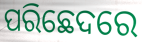
ପରିଛେଦରେ